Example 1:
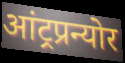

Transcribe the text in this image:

आंट्रप्रन्योर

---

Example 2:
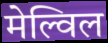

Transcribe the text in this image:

मेल्विल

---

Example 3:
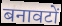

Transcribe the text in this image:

बनावटों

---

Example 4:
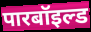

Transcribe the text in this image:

पारबॉइल्ड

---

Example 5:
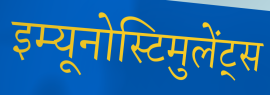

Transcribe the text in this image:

इम्यूनोस्टिमुलेंट्स